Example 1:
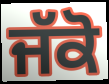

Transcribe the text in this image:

ਜੱਕੋ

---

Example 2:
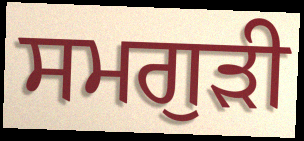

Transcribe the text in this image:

ਸਮਗੁੜੀ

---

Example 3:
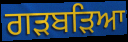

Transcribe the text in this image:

ਗੜਬੜਿਆ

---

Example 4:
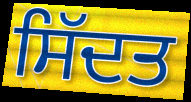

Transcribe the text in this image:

ਸਿੱਦਤ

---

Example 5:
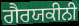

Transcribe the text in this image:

ਗੈਰਯਕੀਨੀ